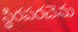
స్థిరపరచెను